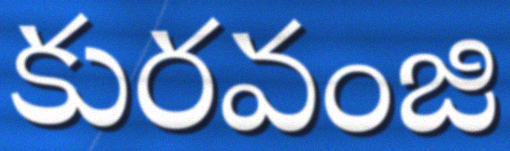
కురవంజి